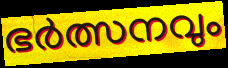
ഭർത്സനവും